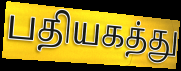
பதியகத்து